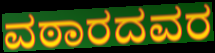
ವಠಾರದವರ